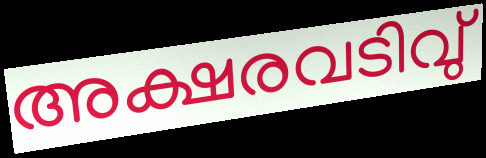
അക്ഷരവടിവു്